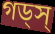
গড্স্